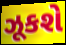
ઝૂકશે